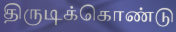
திருடிக்கொண்டு